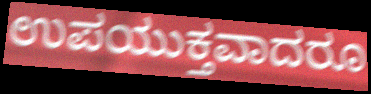
ಉಪಯುಕ್ತವಾದರೂ